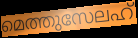
മെത്തുസേലഹ്